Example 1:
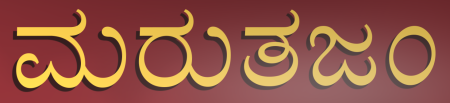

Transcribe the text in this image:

ಮರುತಜಂ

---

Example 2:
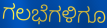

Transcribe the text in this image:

ಗಲಭೆಗಳಿಗೂ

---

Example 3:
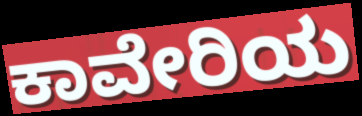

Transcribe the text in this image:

ಕಾವೇರಿಯ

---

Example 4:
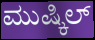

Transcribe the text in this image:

ಮುಷ್ಕಿಲ್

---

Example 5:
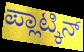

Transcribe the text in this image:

ಪ್ಲಾಟ್ಕಿನ್